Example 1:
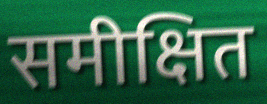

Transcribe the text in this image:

समीक्षित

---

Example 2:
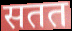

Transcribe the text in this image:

सतत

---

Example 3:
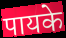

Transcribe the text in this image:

पायके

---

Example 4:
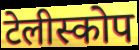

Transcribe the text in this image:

टेलीस्कोप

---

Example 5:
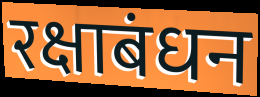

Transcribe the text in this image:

रक्षाबंधन